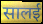
सालई